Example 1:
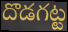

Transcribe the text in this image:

దొడగట్ట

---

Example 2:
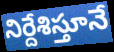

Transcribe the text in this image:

నిర్దేశిస్తూనే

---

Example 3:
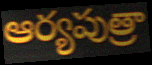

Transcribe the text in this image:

ఆర్యపుత్రా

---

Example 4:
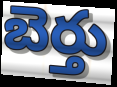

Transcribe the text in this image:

బెర్తు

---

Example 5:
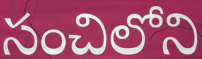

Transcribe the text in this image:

సంచిలోని